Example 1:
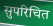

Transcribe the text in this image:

सुपरिचित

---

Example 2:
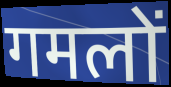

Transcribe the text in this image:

गमलों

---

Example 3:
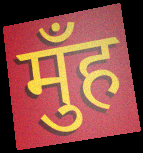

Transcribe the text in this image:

मुँह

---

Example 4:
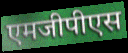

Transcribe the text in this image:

एमजीपीएस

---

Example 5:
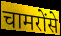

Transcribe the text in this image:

चामरोंसे